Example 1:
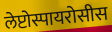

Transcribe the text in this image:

लेप्टोस्पायरोसीस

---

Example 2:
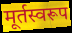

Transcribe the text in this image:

मूर्तस्वरूप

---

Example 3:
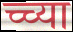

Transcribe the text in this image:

च्च्या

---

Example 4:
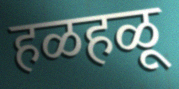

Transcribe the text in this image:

हळहळू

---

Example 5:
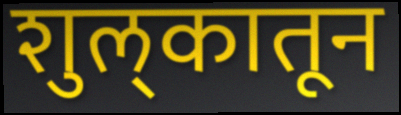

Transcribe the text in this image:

शुल्कातून